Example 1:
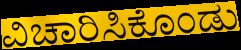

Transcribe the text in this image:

ವಿಚಾರಿಸಿಕೊಂಡು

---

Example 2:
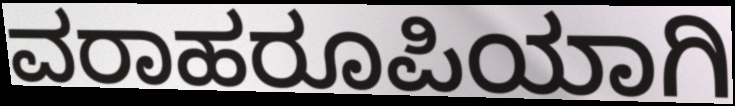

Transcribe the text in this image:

ವರಾಹರೂಪಿಯಾಗಿ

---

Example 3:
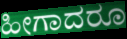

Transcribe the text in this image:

ಹೀಗಾದರೂ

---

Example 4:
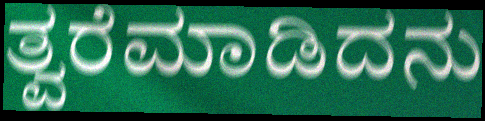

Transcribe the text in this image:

ತ್ವರೆಮಾಡಿದನು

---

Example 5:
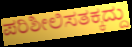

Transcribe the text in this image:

ಪರಿಶೀಲಿಸತಕ್ಕದ್ದು